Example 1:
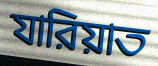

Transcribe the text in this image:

যারিয়াত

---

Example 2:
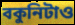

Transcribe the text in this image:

বকুনিটাও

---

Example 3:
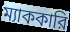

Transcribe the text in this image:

ম্যাককারি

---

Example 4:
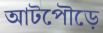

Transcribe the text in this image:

আটপৌড়ে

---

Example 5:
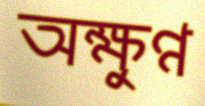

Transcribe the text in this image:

অক্ষুণ্ণ